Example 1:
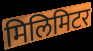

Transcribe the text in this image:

मिलिमिटर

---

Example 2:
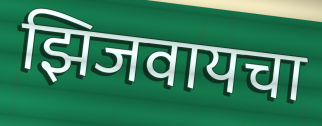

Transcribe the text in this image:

झिजवायचा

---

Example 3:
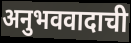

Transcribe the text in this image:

अनुभववादाची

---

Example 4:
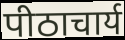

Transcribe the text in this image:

पीठाचार्य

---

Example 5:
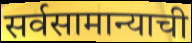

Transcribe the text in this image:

सर्वसामान्याची